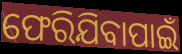
ଫେରିଯିବାପାଇଁ